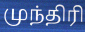
முந்திரி